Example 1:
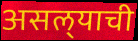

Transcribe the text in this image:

असल्याची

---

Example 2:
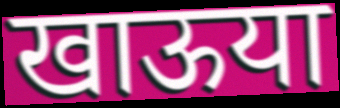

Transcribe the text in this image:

खाऊया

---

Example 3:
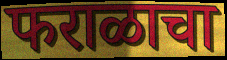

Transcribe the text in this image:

फराळाचा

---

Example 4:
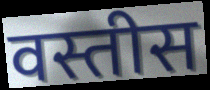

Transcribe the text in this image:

वस्तीस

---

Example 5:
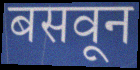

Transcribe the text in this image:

बसवून